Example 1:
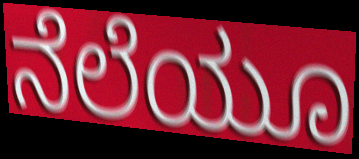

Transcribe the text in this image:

ನೆಲೆಯೂ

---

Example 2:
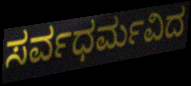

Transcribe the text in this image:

ಸರ್ವಧರ್ಮವಿದ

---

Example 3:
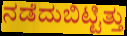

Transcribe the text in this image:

ನಡೆದುಬಿಟ್ಟಿತ್ತು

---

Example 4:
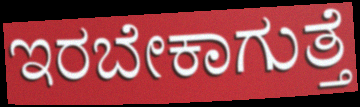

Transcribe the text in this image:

ಇರಬೇಕಾಗುತ್ತೆ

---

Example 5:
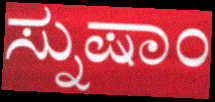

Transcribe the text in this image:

ಸ್ನುಷಾಂ